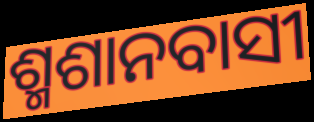
ଶ୍ମଶାନବାସୀ